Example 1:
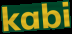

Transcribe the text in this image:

kabi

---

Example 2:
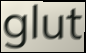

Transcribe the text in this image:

glut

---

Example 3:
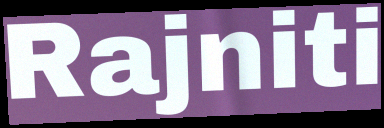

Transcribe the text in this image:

Rajniti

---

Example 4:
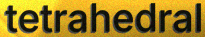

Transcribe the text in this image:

tetrahedral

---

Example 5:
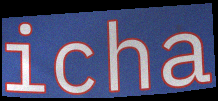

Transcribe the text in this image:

icha